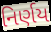
નિર્ણય